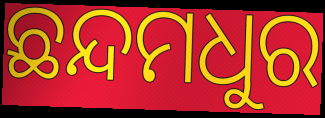
ଛନ୍ଦମଧୁର